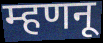
म्हणनू